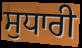
ਸੁਧਾਰੀ